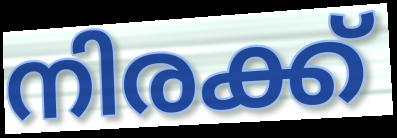
നിരക്ക്